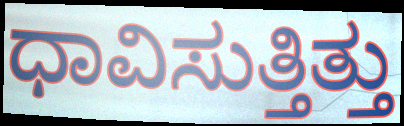
ಧಾವಿಸುತ್ತಿತ್ತು